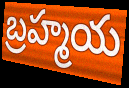
బ్రహ్మయ